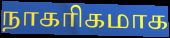
நாகரிகமாக